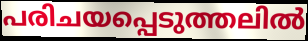
പരിചയപ്പെടുത്തലിൽ